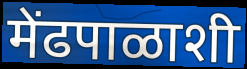
मेंढपाळाशी